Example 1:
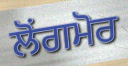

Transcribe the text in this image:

ਲੋਂਗਮੋਰ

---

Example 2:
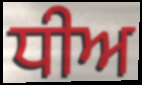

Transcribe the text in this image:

ਧੀਅ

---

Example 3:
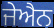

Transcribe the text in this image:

ਜੇਐਨ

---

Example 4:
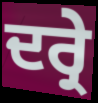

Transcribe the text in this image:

ਦਰ੍ਰੇ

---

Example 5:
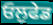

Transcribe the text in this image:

ਓਲੁਫੇਡ